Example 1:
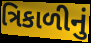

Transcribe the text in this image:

ત્રિકાળીનું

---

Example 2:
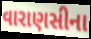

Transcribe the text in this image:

વારાણસીના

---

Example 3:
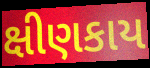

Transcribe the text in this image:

ક્ષીણકાય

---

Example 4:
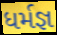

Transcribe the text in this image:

ધર્મજ્ઞ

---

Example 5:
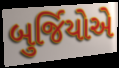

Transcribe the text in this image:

બુર્જિયોએ